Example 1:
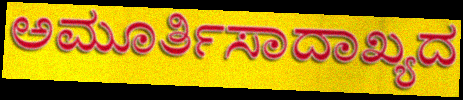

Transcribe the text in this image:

ಅಮೂರ್ತಿಸಾದಾಖ್ಯದ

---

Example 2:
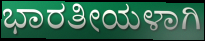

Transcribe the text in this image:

ಭಾರತೀಯಳಾಗಿ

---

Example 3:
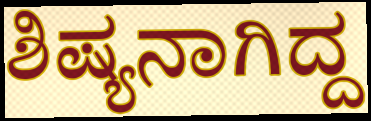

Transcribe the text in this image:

ಶಿಷ್ಯನಾಗಿದ್ದ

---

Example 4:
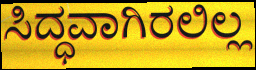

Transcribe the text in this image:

ಸಿದ್ಧವಾಗಿರಲಿಲ್ಲ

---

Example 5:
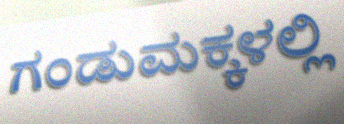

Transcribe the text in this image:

ಗಂಡುಮಕ್ಕಳಲ್ಲಿ